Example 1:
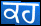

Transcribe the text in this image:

ਕਹ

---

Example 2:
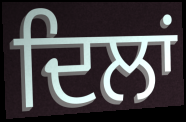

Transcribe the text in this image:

ਦਿਲਾਂ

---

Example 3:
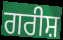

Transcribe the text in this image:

ਗਰੀਸ਼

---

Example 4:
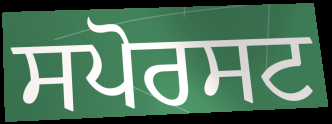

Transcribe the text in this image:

ਸਪੋਰਸਟ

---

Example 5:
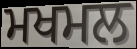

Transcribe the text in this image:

ਮਖਮਲ